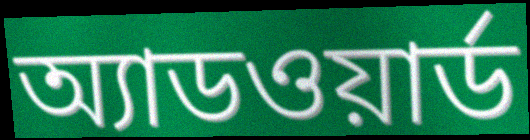
অ্যাডওয়ার্ড